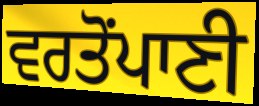
ਵਰਤੋਂਪਾਣੀ